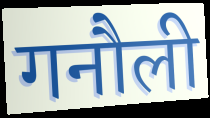
गनौली